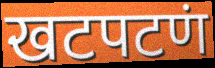
खटपटणं